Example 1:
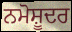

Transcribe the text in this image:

ਨਮੋਸ਼ੂਦਰ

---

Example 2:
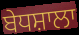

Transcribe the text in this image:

ਬੇਧਸ਼ਾਲਾ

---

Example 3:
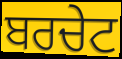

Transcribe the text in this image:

ਬਰਚੇਟ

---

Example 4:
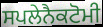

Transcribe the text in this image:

ਸਪਲੇਨੈਕਟੋਮੀ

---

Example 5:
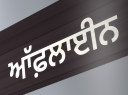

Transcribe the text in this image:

ਆੱਫ਼ਲਾਈਨ